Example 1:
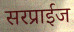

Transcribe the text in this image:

सरप्राईज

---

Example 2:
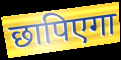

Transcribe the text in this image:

छापिएगा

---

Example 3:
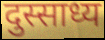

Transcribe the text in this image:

दुस्साध्य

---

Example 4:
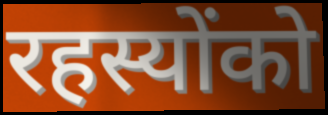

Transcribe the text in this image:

रहस्योंको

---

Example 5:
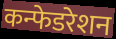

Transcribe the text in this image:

कन्‍फेडरेशन